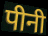
पीनी